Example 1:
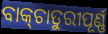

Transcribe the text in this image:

ବାକ୍‌ଚାତୁରୀପୂର୍ଣ୍ଣ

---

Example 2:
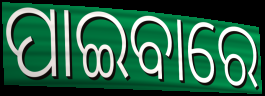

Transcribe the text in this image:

ପାଇବାରେ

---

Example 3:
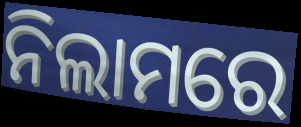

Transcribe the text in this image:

ନିଲାମରେ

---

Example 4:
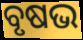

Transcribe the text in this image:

ବୃଷଭ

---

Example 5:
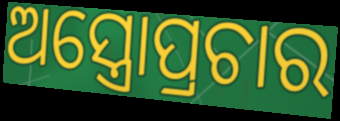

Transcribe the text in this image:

ଅସ୍ତ୍ରୋପ୍ରଚାର